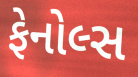
ફેનોલ્સ